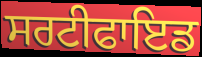
ਸਰਟੀਫਾਇਡ